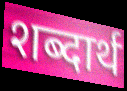
शब्दार्थ